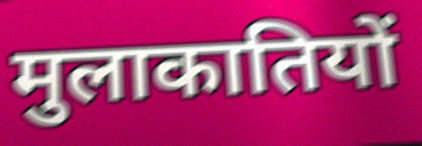
मुलाकातियों